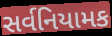
સર્વનિયામક